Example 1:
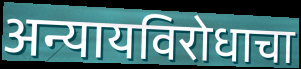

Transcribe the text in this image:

अन्यायविरोधाचा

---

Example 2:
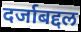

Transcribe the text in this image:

दर्जाबद्दल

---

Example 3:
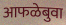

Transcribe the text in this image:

आफळेबुवा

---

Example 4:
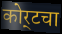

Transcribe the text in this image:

कोर्टचा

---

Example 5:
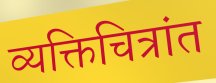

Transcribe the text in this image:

व्यक्तिचित्रांत